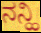
ನನ್ಹಿ